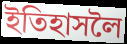
ইতিহাসলৈ